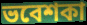
ভবেশকা